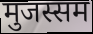
मुजस्सम